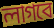
লাগবে